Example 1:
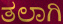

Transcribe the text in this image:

ತಲಾಗಿ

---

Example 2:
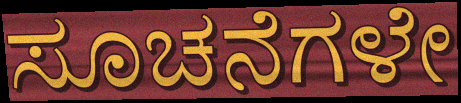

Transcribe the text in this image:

ಸೂಚನೆಗಳೇ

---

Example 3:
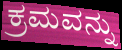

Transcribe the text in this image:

ಕ್ರಮವನ್ನು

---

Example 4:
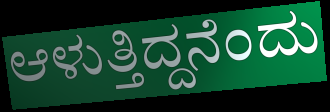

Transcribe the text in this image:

ಆಳುತ್ತಿದ್ದನೆಂದು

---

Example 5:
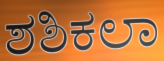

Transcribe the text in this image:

ಶಶಿಕಲಾ